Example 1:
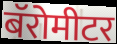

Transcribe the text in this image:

बॅरोमीटर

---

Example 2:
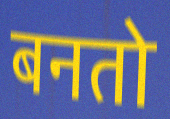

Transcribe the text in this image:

बनतो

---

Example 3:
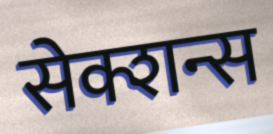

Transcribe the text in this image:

सेक्शन्स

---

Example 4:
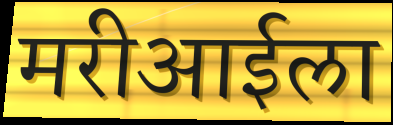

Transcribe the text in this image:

मरीआईला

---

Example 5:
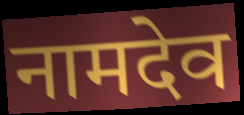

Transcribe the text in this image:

नामदेव